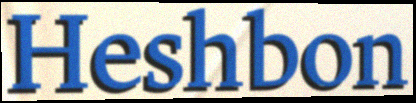
Heshbon